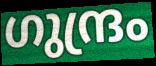
ഗുന്ദ്രം